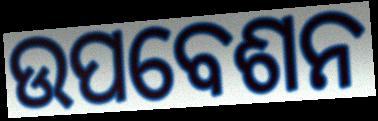
ଉପବେଶନ